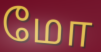
மோ